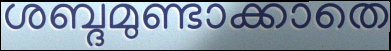
ശബ്ദമുണ്ടാക്കാതെ